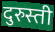
दुरुस्ती